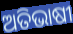
ଅତିଭାଷୀ